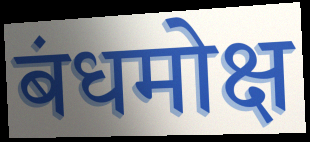
बंधमोक्ष